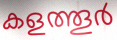
കളത്തൂർ